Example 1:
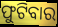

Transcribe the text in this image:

ଫୁଟିବାର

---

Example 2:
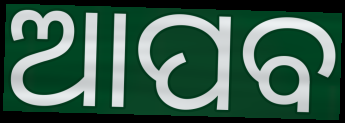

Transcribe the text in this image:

ଆପବ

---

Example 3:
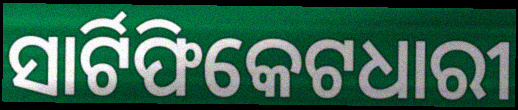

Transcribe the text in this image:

ସାର୍ଟିଫିକେଟଧାରୀ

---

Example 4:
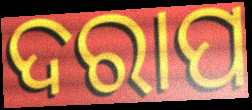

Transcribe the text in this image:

ଦରାପ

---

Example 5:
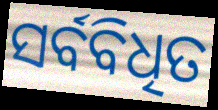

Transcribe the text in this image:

ସର୍ବବିଧିତ